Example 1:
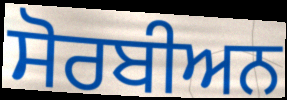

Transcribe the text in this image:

ਸੋਰਬੀਅਨ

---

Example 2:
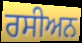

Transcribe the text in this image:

ਰਸੀਅਨ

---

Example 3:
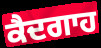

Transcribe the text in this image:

ਕੈਦਗਾਹ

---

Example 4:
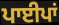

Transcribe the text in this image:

ਪਾਈਪਾਂ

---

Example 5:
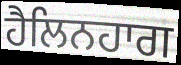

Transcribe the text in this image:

ਹੈਲਿਨਹਾਗ